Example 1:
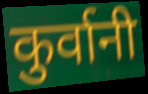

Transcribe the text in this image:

कुर्वानी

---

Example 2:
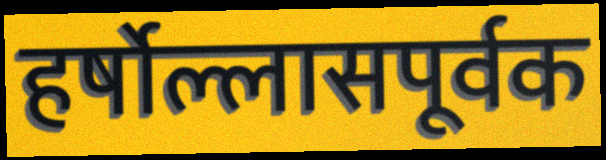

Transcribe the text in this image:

हर्षोल्लासपूर्वक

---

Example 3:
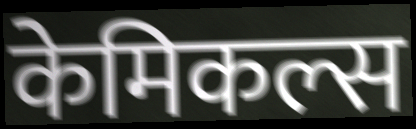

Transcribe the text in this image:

केमिकल्स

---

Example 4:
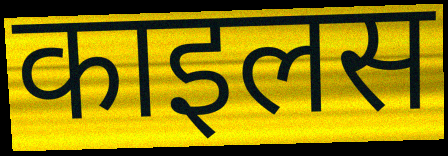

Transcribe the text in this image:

काइलस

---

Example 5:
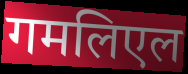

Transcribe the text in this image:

गमलिएल